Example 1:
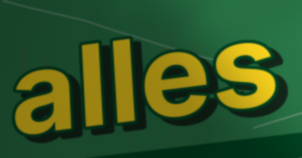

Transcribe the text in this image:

alles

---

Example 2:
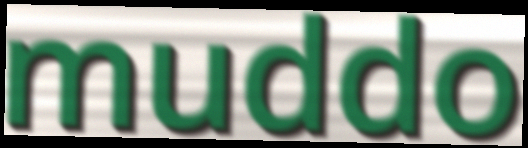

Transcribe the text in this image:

muddo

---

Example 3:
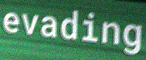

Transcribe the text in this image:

evading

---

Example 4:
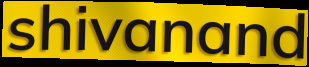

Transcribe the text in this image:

shivanand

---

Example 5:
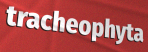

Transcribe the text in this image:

tracheophyta